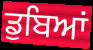
ਡੁਬਿਆਂ